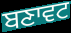
ਬਣਾਵਟ